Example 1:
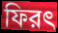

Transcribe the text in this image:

ফিরৎ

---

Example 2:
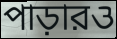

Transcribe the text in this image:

পাড়ারও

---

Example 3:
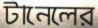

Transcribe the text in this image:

টানেলের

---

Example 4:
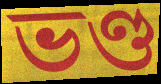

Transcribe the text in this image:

ভণ্ড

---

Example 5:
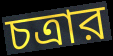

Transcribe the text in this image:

চত্রার